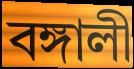
বঙ্গালী